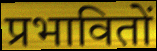
प्रभावितों